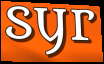
syr